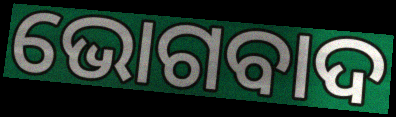
ଭୋଗବାଦ